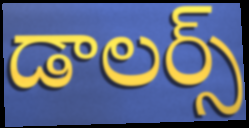
డాలర్స్